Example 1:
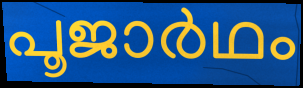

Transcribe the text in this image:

പൂജാർഥം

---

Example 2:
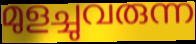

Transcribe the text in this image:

മുളച്ചുവരുന്ന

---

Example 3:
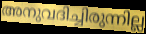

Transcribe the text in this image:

അനുവദിച്ചിരുന്നില്ല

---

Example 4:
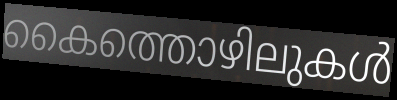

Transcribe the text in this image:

കൈത്തൊഴിലുകൾ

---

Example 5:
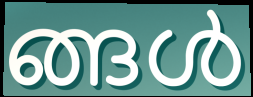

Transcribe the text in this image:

ങ്ങൾ